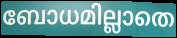
ബോധമില്ലാതെ